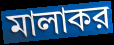
মালাকর